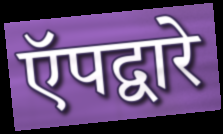
ऍपद्वारे